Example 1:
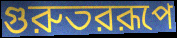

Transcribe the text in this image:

গুরুতররূপে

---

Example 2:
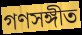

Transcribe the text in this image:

গণসঙ্গীত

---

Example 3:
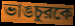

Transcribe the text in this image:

ভাঙচুরকে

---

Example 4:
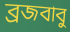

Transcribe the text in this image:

ব্রজবাবু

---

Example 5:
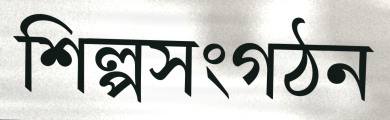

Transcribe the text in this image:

শিল্পসংগঠন